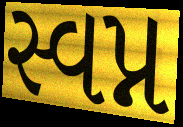
સ્વપ્ન